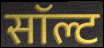
सॉल्‍ट